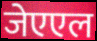
जेएएल